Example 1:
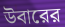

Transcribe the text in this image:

উবারের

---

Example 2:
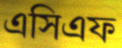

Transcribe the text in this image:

এসিএফ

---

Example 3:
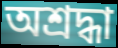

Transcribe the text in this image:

অশ্রদ্ধা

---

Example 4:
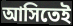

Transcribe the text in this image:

আসিতেই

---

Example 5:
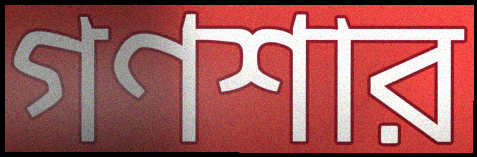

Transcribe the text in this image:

গণশার